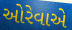
ઓરેવાએ